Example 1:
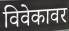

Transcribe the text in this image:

विवेकावर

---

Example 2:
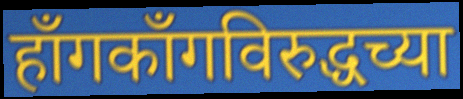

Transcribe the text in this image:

हाँगकाँगविरुद्धच्या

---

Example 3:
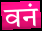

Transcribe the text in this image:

वनं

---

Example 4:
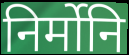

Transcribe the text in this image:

निर्मोनि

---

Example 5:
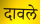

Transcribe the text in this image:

दावले